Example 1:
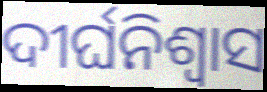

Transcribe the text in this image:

ଦୀର୍ଘନିଶ୍ୱାସ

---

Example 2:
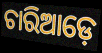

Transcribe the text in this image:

ଚାରିଆଡ଼େ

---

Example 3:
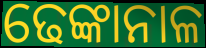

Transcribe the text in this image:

ଢେଙ୍କାନାଳ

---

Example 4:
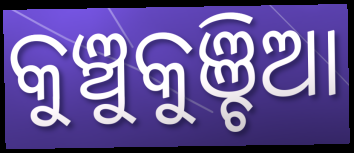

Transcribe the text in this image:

କୁଞ୍ଚୁକୁଞ୍ଚିଆ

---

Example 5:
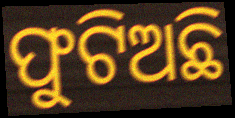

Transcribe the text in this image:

ଫୁଟିଅଛି